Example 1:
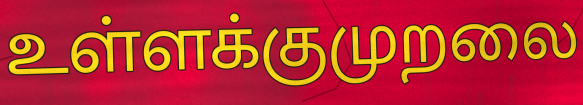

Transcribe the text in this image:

உள்ளக்குமுறலை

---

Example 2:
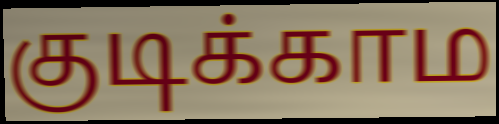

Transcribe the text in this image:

குடிக்காம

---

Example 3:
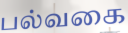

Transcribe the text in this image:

பல்வகை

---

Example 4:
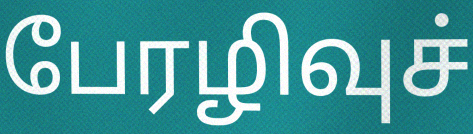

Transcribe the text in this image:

பேரழிவுச்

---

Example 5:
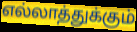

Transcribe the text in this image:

எல்லாத்துக்கும்